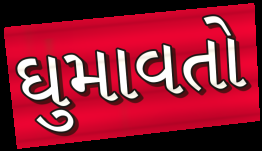
ઘુમાવતો